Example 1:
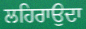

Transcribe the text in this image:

ਲਹਿਰਾਉਦਾ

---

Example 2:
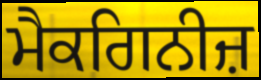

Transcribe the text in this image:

ਮੈਕਗਿਨੀਜ਼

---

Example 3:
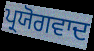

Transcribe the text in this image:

ਪ੍ਰਯੋਗਵਾਦ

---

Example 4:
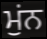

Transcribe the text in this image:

ਮੁਂਨ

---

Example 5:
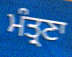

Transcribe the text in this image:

ਮੰਤ੍ਰਣਾ